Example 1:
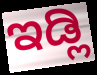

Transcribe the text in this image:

ಇಡ್ಲಿ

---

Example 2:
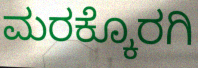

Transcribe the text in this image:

ಮರಕ್ಕೊರಗಿ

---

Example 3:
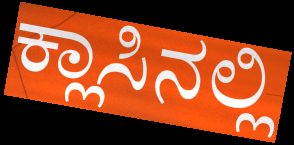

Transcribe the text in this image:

ಕ್ಲಾಸಿನಲ್ಲಿ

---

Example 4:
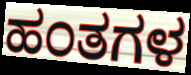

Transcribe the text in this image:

ಹಂತಗಳ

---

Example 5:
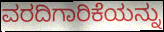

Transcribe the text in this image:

ವರದಿಗಾರಿಕೆಯನ್ನು